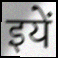
इयें